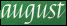
august